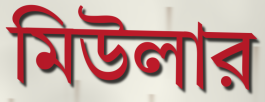
মিউলার